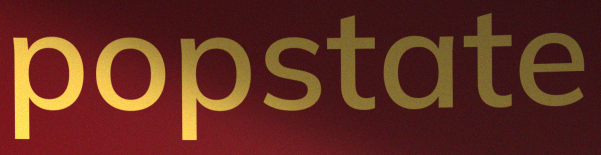
popstate